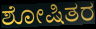
ಶೋಷಿತರ